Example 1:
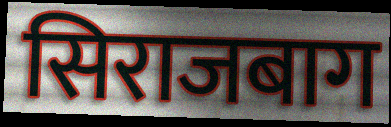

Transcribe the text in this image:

सिराजबाग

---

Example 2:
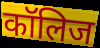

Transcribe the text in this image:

कॉलिज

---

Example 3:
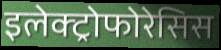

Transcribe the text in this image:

इलेक्ट्रोफोरेसिस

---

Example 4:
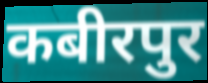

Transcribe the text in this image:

कबीरपुर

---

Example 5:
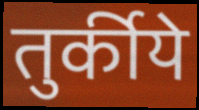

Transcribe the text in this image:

तुर्कीये